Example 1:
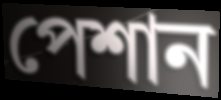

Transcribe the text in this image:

পেশান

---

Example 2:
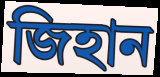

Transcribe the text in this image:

জিহান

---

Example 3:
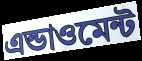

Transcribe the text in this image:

এন্ডাওমেন্ট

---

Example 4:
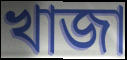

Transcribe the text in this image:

খাজা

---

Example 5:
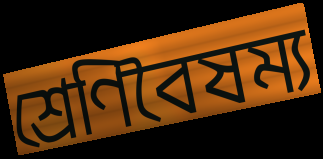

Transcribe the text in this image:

শ্রেণিবৈষম্য